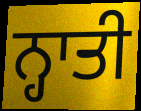
ਨ੍ਹਾਤੀ